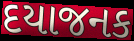
દયાજનક